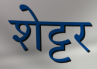
शेट्टर